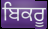
ਬਿਕਰੂ